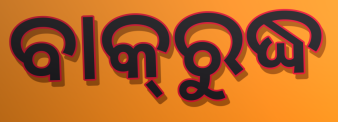
ବାକ୍‌ରୁଦ୍ଧ